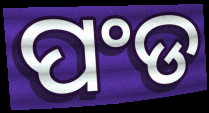
ପଂଡ